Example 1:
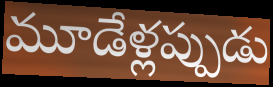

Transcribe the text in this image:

మూడేళ్లప్పుడు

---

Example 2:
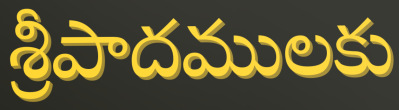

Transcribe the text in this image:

శ్రీపాదములకు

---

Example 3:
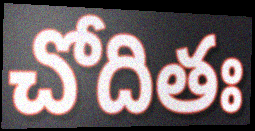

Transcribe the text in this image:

చోదితః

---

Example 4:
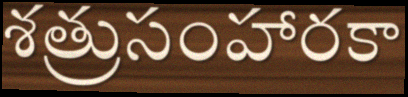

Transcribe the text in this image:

శత్రుసంహారకా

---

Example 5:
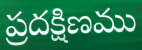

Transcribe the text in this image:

ప్రదక్షిణము